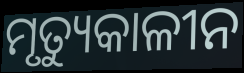
ମୃତ୍ୟୁକାଳୀନ